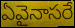
ఏవైనాసరే